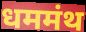
धममंथ